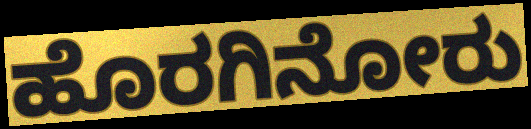
ಹೊರಗಿನೋರು